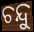
ଚନ୍ଦୁ